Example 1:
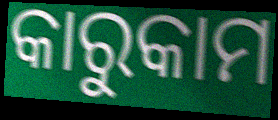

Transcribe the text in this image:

କାରୁକାମ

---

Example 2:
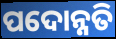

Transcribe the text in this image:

ପଦୋନ୍ନତି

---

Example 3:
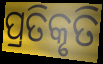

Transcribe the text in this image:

ପ୍ରତିକୃତି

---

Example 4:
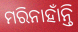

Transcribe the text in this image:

ମରିନାହାଁନ୍ତି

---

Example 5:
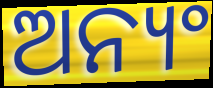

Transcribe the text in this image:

ଅନ୍ୟଂ